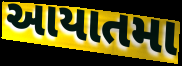
આયાતમા